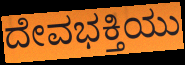
ದೇವಭಕ್ತಿಯು